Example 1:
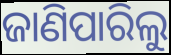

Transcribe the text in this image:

ଜାଣିପାରିଲୁ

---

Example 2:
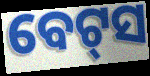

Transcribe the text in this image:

ବେଟ୍‌ସ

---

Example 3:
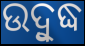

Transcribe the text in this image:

ଉଦ୍ୱୁଦ୍ଧ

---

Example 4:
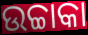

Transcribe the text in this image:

ଉଚ୍ଚାକା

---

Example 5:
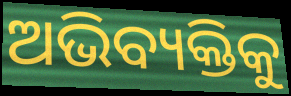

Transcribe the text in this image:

ଅଭିବ୍ୟକ୍ତିକୁ